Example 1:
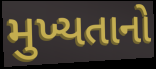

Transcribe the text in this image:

મુખ્યતાનો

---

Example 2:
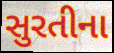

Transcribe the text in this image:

સુરતીના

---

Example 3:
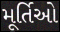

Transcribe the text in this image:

મૂર્તિઓ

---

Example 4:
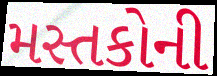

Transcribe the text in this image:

મસ્તકોની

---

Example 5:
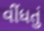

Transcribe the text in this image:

વીંધતું